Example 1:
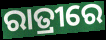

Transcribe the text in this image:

ରାତ୍ରୀରେ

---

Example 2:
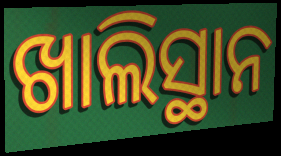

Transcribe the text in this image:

ଖାଲିସ୍ଥାନ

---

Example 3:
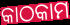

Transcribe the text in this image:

କାଠକାମ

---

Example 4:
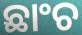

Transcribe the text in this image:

ଛାଂଚ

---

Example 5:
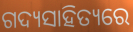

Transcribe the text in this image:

ଗଦ୍ୟସାହିତ୍ୟରେ